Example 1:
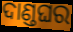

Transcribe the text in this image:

ଦାଣ୍ଡଘର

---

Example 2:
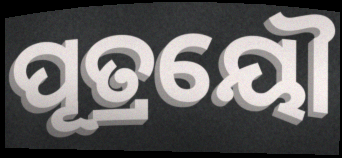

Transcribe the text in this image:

ପୂତ୍ରୟୌ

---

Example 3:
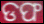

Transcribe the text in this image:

ଡଫ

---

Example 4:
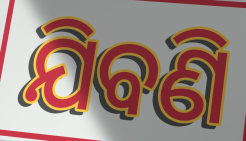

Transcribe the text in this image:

ଯିବଣି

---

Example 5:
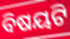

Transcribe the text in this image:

ବିଷୟଟି